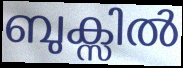
ബുക്സിൽ